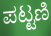
ಪಟ್ಟಣಿ